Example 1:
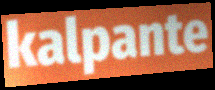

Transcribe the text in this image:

kalpante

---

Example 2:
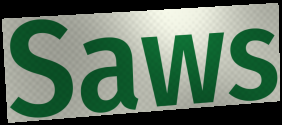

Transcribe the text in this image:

Saws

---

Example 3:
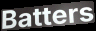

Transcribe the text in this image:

Batters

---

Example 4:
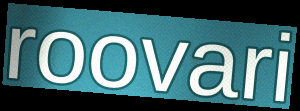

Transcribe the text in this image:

roovari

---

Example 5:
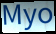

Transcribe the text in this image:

Myo